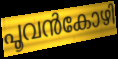
പൂവൻകോഴി